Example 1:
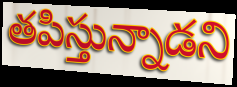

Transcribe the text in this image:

తపిస్తున్నాడని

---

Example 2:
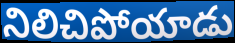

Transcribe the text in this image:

నిలిచిపోయాడు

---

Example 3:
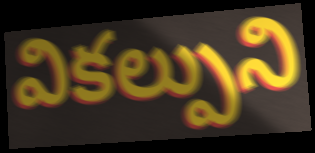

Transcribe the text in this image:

వికల్పుని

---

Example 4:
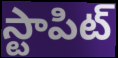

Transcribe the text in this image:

స్టాపిట్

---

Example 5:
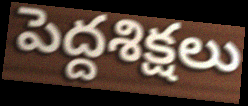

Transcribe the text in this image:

పెద్దశిక్షలు